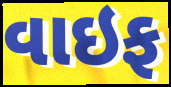
વાઇફ